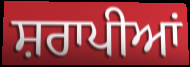
ਸ਼ਰਾਪੀਆਂ